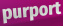
purport